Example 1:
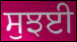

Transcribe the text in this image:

ਸੁਝਈ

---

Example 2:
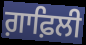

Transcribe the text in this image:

ਗ਼ਾਫ਼ਿਲੀ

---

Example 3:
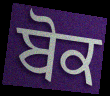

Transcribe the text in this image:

ਬੋਕ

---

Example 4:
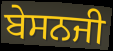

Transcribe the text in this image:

ਬੇਸਨਜੀ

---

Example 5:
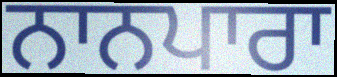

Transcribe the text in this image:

ਨਾਨਪਾਰਾ